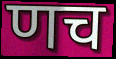
णच